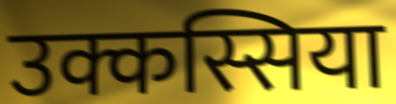
उक्कस्सिया